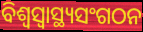
ବିଶ୍ଵସ୍ଵାସ୍ଥ୍ୟସଂଗଠନ